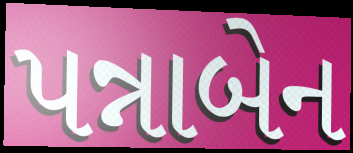
પન્નાબેન